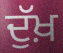
ਦੁੱਖ਼